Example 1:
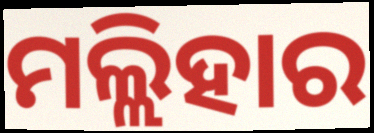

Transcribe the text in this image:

ମଲ୍ଲିହାର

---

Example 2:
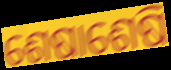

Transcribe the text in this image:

ଶେଷାଶେଷି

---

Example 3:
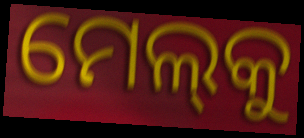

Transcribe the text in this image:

ମେଲ୍‌କୁ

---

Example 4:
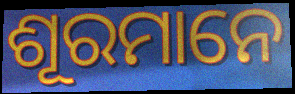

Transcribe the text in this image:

ଶୂରମାନେ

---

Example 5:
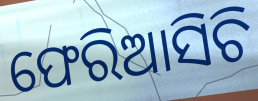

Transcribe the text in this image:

ଫେରିଆସିଚି